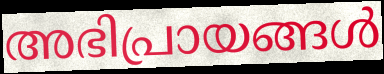
അഭിപ്രായങ്ങൾ